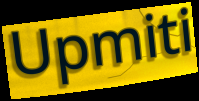
Upmiti